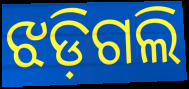
ଝଡ଼ିଗଲି